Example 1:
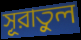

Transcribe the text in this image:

সূরাতুল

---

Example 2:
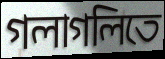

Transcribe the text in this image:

গলাগলিতে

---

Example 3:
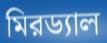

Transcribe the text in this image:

মিরড্যাল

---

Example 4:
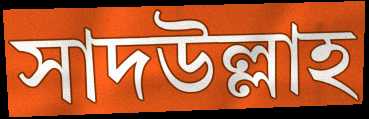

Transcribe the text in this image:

সাদউল্লাহ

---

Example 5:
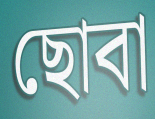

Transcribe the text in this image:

ছোবা